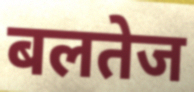
बलतेज